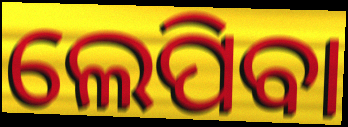
ଲେପିବା